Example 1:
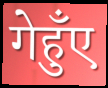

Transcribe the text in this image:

गेहुँए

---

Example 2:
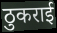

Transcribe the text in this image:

ठुकराई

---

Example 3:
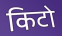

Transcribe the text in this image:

किटो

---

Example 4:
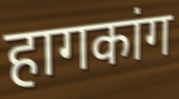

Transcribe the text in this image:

हागकांग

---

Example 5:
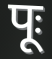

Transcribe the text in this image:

पूः